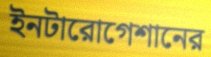
ইনটারোগেশানের